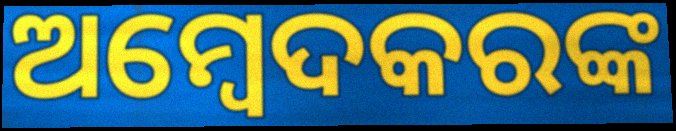
ଅମ୍ବେଦକରଙ୍କ